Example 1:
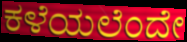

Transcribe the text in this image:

ಕಳೆಯಲೆಂದೇ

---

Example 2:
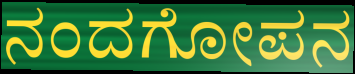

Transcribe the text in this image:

ನಂದಗೋಪನ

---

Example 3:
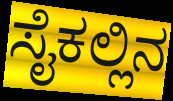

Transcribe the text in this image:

ಸೈಕಲ್ಲಿನ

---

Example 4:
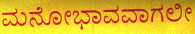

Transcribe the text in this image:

ಮನೋಭಾವವಾಗಲೀ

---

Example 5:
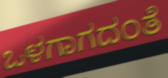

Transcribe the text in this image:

ಒಳಗಾಗದಂತೆ